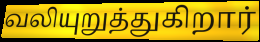
வலியுறுத்துகிறார்